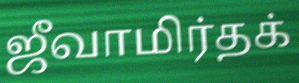
ஜீவாமிர்தக்